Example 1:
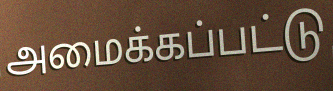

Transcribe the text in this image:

அமைக்கப்பட்டு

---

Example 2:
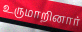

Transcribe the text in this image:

உருமாறினார்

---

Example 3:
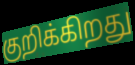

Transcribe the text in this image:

குறிக்கிறது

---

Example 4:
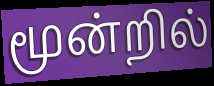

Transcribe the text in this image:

மூன்றில்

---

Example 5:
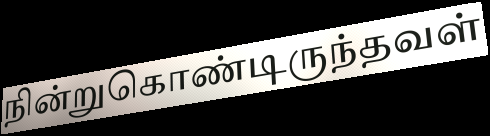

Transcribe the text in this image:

நின்றுகொண்டிருந்தவள்